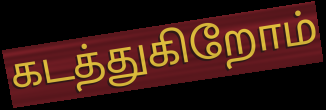
கடத்துகிறோம்